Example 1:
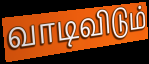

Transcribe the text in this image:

வாடிவிடும்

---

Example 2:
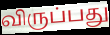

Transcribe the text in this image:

விருப்பது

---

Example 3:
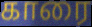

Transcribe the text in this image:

காரை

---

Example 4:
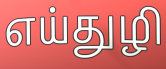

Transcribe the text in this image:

எய்துழி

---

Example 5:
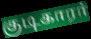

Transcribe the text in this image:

குடிகாரர்